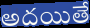
అదయితే